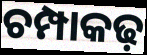
ଚମ୍ପାକଢ଼